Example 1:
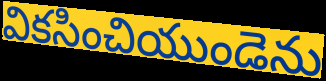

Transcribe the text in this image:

వికసించియుండెను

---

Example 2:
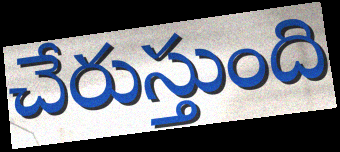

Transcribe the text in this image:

చేరుస్తుంది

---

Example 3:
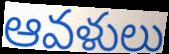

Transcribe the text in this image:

ఆవళులు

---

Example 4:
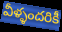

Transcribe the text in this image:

వీళ్ళందరికీ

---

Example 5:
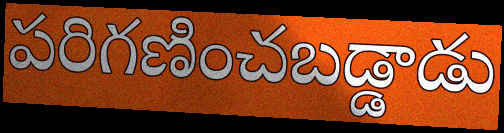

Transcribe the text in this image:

పరిగణించబడ్డాడు